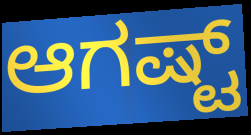
ಆಗಷ್ಟ್